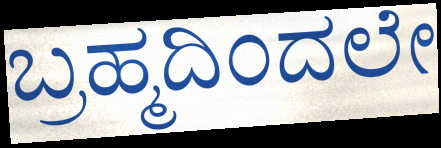
ಬ್ರಹ್ಮದಿಂದಲೇ